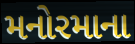
મનોરમાના